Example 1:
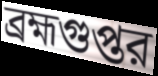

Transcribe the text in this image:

ব্রহ্মগুপ্তর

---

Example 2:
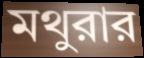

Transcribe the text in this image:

মথুরার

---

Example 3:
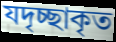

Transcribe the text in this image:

যদৃচ্ছাকৃত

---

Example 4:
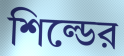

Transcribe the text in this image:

শিল্ডের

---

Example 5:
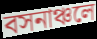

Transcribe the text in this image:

বসনাঞ্চলে